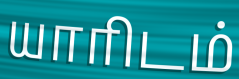
யாரிடம்